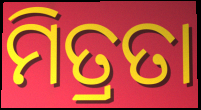
ମିତ୍ରତା